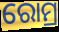
ରୋମ୍ର